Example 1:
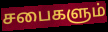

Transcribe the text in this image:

சபைகளும்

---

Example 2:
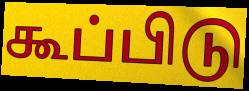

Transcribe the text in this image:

கூப்பிடு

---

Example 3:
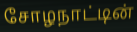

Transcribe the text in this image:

சோழநாட்டின்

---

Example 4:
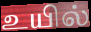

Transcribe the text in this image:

உயில்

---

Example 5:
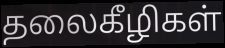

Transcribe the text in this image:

தலைகீழிகள்